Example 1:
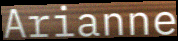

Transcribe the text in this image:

Arianne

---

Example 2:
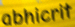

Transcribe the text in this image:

abhicrit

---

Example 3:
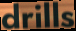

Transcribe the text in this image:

drills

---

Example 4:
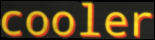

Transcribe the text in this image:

cooler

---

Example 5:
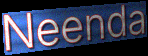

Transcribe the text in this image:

Neenda